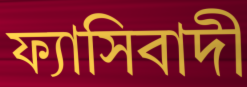
ফ্যাসিবাদী